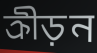
ক্রীড়ন